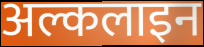
अल्कलाइन